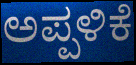
ಅಪ್ಪಳಿಕೆ